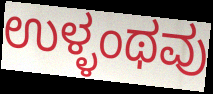
ಉಳ್ಳಂಥವು